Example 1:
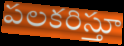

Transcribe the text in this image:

పలకరిస్తూ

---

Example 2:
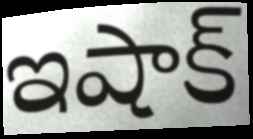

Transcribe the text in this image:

ఇషాక్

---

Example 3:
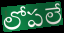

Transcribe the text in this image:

లోపలే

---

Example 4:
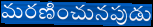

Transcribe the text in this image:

మరణించునపుడు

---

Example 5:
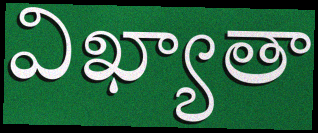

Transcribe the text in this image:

విఖ్యాతా